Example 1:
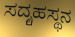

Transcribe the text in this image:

ಸದ್ಗೃಹಸ್ಥನ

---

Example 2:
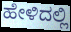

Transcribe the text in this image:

ಹೇಳಿದಲ್ಲಿ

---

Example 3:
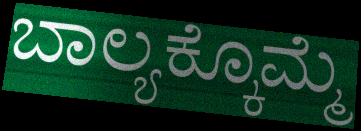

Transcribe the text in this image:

ಬಾಲ್ಯಕ್ಕೊಮ್ಮೆ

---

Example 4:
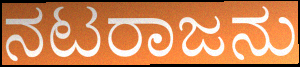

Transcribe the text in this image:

ನಟರಾಜನು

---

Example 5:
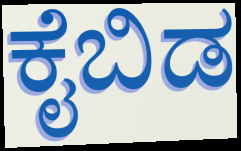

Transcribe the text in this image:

ಕೈಬಿಡ